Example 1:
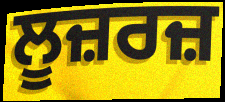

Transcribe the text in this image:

ਲੂਜ਼ਰਜ਼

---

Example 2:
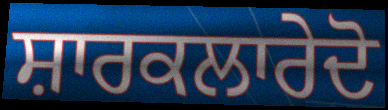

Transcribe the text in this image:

ਸ਼ਾਰਕਲਾਰੇਦੋ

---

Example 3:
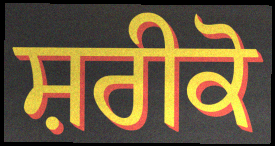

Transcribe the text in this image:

ਸ਼ਰੀਕੋ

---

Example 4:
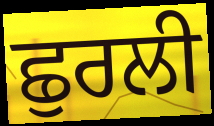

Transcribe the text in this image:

ਛੁਰਲੀ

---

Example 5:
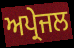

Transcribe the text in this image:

ਅਪ੍ਰੇਜਲ